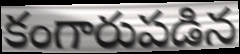
కంగారుపడిన